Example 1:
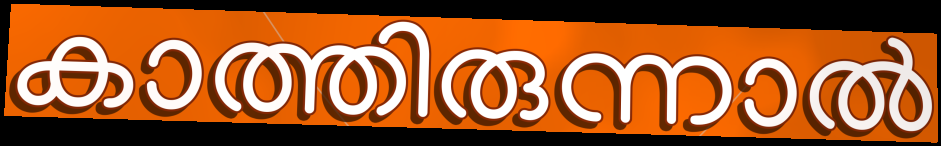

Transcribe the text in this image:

കാത്തിരുന്നാൽ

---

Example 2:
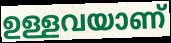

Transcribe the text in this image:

ഉള്ളവയാണ്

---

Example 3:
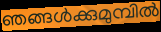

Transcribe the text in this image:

ഞങ്ങൾക്കുമുമ്പിൽ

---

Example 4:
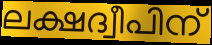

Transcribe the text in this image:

ലക്ഷദ്വീപിന്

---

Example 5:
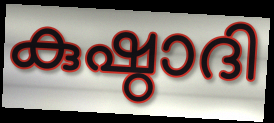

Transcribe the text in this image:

കുഷ്ഠാദി